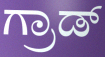
ಗ್ರಾಡ್